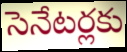
సెనేటర్లకు